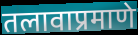
तलावाप्रमाणे